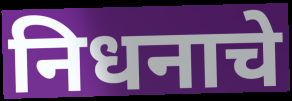
निधनाचे